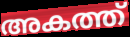
അകത്ത്